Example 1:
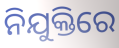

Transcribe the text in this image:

ନିଯୁକ୍ତିରେ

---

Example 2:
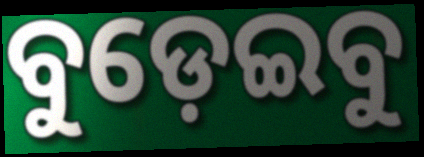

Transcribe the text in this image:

ବୁଡ଼େଇବୁ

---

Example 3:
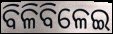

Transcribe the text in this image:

ବିଳିବିଳେଇ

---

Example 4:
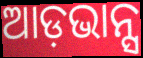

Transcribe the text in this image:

ଆଡ଼ଭାନ୍ସ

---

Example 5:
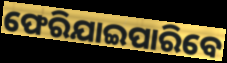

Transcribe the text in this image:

ଫେରିଯାଇପାରିବେ